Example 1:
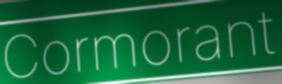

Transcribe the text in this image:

Cormorant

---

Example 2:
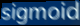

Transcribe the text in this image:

sigmoid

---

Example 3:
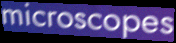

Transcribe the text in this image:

microscopes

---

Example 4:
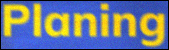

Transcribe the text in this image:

Planing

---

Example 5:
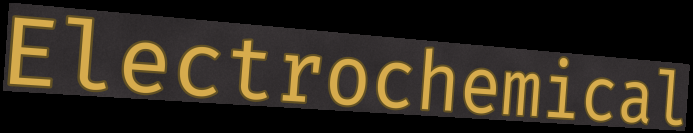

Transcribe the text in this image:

Electrochemical